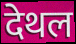
देथल